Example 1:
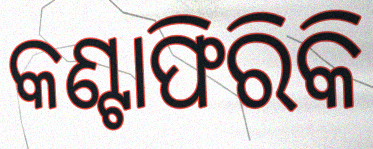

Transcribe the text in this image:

କଣ୍ଟାଫିରିକି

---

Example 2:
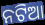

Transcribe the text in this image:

ନଟିଆ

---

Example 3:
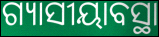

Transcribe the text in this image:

ଗ୍ୟାସୀୟାବସ୍ଥା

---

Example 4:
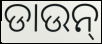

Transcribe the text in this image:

ଡାଉନ୍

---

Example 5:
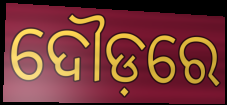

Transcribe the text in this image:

ଦୌଡ଼ରେ